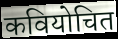
कवियोचित